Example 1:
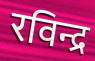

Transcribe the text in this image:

रविन्द्र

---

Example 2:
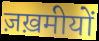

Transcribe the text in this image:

ज़ख़मीयों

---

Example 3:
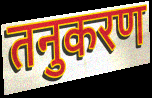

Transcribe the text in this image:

तनुकरण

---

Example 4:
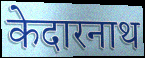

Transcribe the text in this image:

केदारनाथ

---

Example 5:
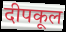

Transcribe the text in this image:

दीपकूल